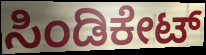
ಸಿಂಡಿಕೇಟ್